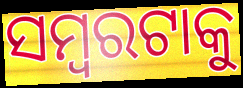
ସମ୍ବରଟାକୁ